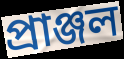
প্ৰাঞ্জল